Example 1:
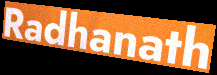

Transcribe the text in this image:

Radhanath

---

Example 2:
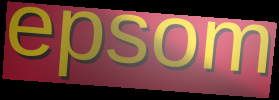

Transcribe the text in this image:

epsom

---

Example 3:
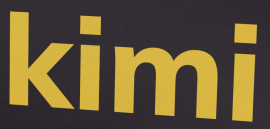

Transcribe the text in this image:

kimi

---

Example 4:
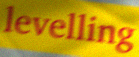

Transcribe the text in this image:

levelling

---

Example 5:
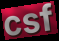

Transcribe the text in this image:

csf